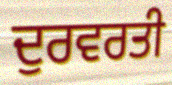
ਦੁਰਵਰਤੀ